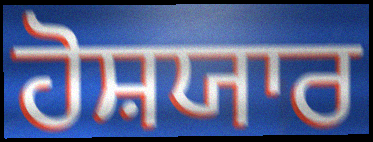
ਹੋਸ਼ਯਾਰ